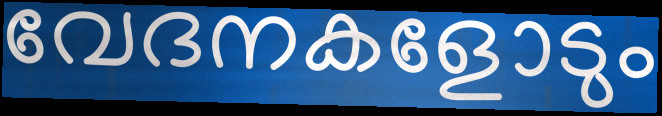
വേദനകളോടും